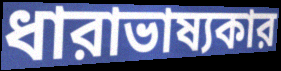
ধারাভাষ্যকার